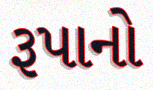
રૂપાનો